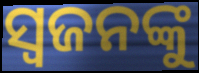
ସ୍ଵଜନଙ୍କୁ